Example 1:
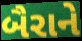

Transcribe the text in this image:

બૈરાને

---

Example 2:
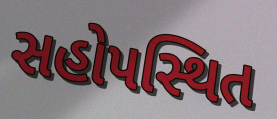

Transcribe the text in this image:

સહોપસ્થિત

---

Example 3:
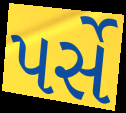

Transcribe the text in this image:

પર્સે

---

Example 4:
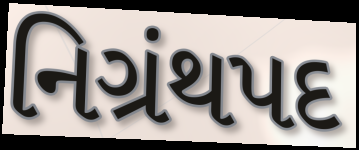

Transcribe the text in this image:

નિગ્રંથપદ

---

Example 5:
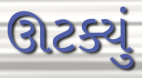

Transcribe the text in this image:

ઊટક્યું